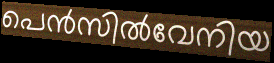
പെൻസിൽവേനിയ